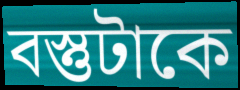
বস্তুটাকে